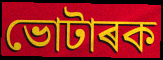
ভোটাৰক